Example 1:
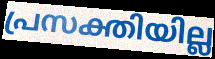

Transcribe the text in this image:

പ്രസക്തിയില്ല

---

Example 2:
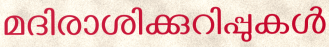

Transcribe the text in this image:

മദിരാശിക്കുറിപ്പുകൾ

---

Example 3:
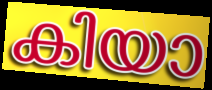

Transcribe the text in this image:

കിയാ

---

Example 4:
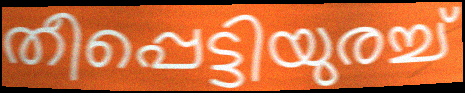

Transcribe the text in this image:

തീപ്പെട്ടിയുരച്ച്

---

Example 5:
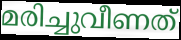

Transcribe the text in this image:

മരിച്ചുവീണത്